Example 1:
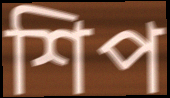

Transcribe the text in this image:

শিপ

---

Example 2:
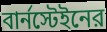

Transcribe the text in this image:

বার্নস্টেইনের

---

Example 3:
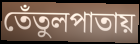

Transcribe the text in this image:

তেঁতুলপাতায়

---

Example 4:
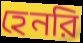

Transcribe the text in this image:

হেনরি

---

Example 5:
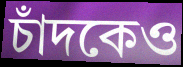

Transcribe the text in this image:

চাঁদকেও